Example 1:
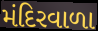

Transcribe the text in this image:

મંદિરવાળા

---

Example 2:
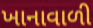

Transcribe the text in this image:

ખાનાવાળી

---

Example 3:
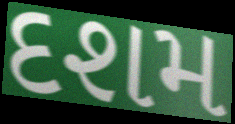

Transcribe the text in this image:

દશમ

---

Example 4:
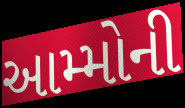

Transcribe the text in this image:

આમ્મોની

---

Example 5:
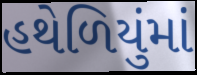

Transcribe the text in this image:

હથેળિયુંમાં